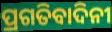
ପ୍ରଗତିବାଦିନୀ